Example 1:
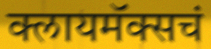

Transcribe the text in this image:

क्लायमॅक्सचं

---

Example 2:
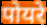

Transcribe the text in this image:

पोयरे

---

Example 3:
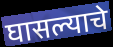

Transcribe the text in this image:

घासल्याचे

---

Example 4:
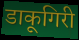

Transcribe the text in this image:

डाकूगिरी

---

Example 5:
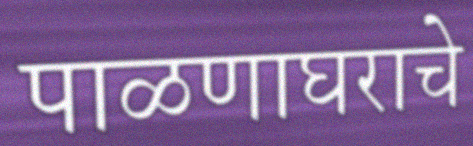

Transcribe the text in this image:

पाळणाघराचे